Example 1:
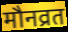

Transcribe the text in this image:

मौनव्रत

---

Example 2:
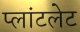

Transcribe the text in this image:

प्लांटलेट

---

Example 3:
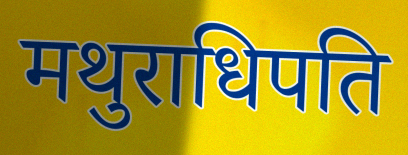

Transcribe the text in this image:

मथुराधिपति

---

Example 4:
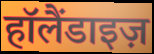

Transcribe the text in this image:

हॉलैंडाइज़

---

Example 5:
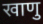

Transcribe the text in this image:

खाणु